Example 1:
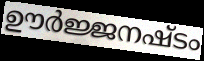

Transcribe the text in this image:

ഊർജ്ജനഷ്ടം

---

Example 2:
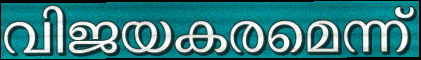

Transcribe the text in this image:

വിജയകരമെന്ന്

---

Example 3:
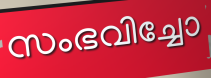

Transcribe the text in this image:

സംഭവിച്ചോ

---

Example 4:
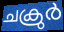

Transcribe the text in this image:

ചക്രുർ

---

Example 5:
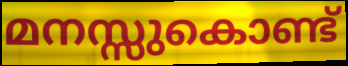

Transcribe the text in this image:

മനസ്സുകൊണ്ട്